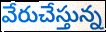
వేరుచేస్తున్న